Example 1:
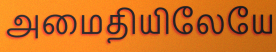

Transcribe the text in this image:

அமைதியிலேயே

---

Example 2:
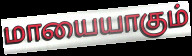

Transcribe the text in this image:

மாயையாகும்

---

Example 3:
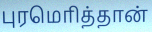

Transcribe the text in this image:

புரமெரித்தான்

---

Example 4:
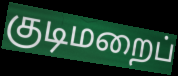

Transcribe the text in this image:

குடிமறைப்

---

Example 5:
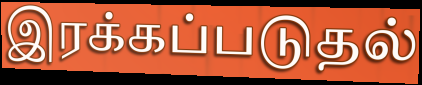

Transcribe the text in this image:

இரக்கப்படுதல்